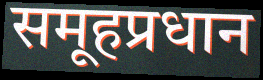
समूहप्रधान